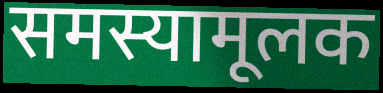
समस्यामूलक